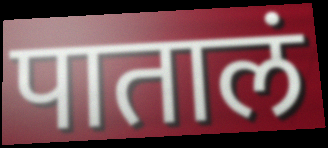
पातालं